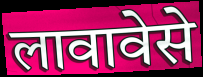
लावावेसे